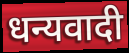
धन्यवादी